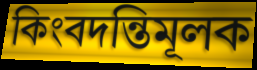
কিংবদন্তিমূলক